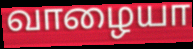
வாழையா